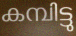
കമ്പിട്ടു